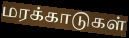
மரக்காடுகள்